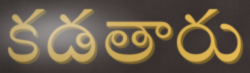
కడతారు